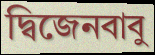
দ্বিজেনবাবু